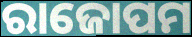
ରାଜୋପମ